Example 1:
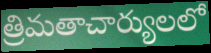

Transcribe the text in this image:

త్రిమతాచార్యులలో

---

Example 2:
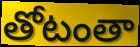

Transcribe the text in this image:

తోటంతా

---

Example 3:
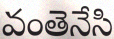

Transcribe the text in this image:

వంతెనేసి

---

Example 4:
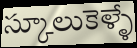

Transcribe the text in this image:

స్కూలుకెళ్ళే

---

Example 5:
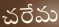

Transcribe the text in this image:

చరేమ